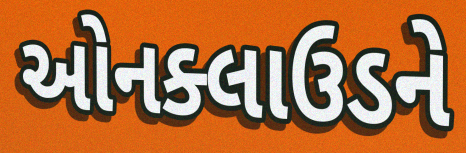
ઓનક્લાઉડને